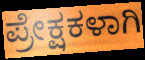
ಪ್ರೇಕ್ಷಕಳಾಗಿ